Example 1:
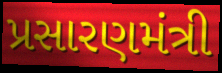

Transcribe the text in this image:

પ્રસારણમંત્રી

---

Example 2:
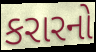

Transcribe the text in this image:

કરારનો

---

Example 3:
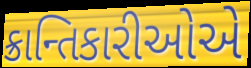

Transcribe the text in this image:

ક્રાન્તિકારીઓએ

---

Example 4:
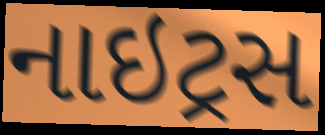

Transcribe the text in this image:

નાઇટ્રસ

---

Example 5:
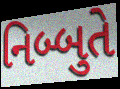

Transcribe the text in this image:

નિબ્બુતે